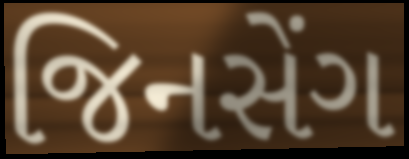
જિનસેંગ